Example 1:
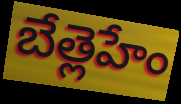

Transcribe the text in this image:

బేత్లెహేం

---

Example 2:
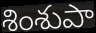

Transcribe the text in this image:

శింశుపా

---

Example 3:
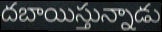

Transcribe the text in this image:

దబాయిస్తున్నాడు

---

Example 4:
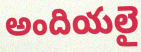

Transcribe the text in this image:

అందియలై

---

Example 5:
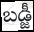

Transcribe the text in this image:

బడ్జీ